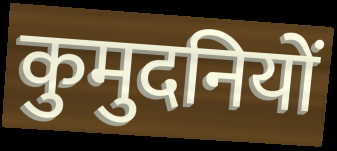
कुमुदनियों